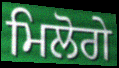
ਮਿਲੋਗੇ